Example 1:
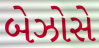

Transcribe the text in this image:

બેઝોસે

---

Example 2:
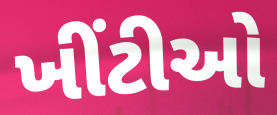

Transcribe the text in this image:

ખીંટીઓ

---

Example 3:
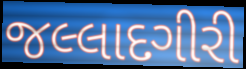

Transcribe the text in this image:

જલ્લાદગીરી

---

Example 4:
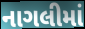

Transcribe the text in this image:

નાગલીમાં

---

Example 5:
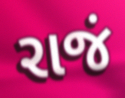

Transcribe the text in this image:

રાજં